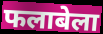
फलाबेला